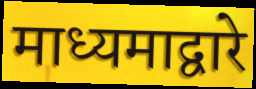
माध्यमाद्वारे